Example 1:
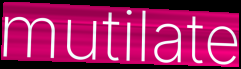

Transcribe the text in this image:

mutilate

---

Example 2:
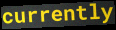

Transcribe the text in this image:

currently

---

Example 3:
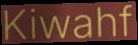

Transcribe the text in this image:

Kiwahf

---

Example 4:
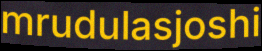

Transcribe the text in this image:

mrudulasjoshi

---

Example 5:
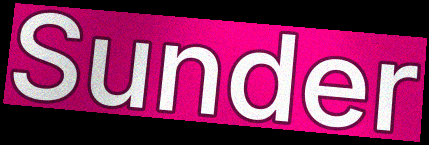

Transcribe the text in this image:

Sunder